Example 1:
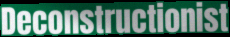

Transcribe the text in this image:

Deconstructionist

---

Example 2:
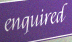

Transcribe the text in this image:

enquired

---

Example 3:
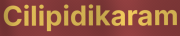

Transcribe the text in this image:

Cilipidikaram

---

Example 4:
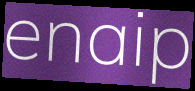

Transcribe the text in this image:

enaip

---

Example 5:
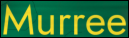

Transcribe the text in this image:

Murree